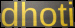
dhoti